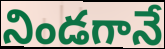
నిండగానే